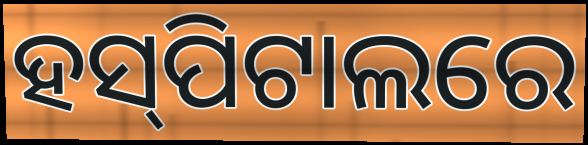
ହସ୍‌ପିଟାଲରେ